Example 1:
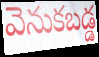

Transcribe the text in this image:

వెనుకబడ్డ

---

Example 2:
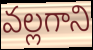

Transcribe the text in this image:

వల్లగాని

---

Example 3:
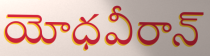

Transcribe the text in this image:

యోధవీరాన్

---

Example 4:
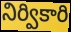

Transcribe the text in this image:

నిర్వికారి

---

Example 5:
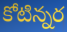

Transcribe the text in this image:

కోటిన్నర